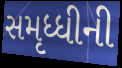
સમૃધ્ધીની